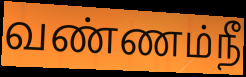
வண்ணம்நீ